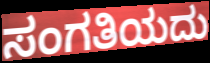
ಸಂಗತಿಯದು